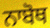
ਨਾਬੋਥ